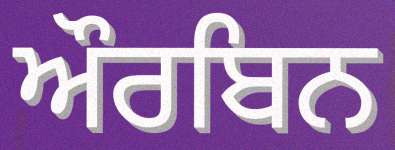
ਔਰਬਿਨ